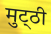
मुट्‌ठी